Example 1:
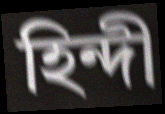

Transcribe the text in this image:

হিন্দী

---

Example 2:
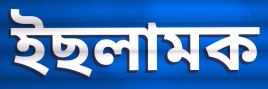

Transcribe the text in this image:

ইছলামক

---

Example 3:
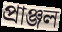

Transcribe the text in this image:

প্ৰাঞ্জল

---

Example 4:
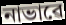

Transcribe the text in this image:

নাভাৱে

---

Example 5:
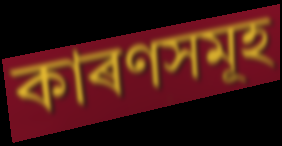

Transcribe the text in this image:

কাৰণসমূহ